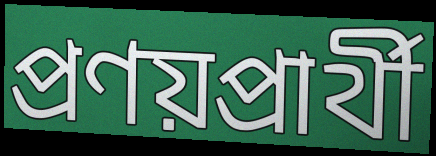
প্ৰণয়প্ৰাৰ্থী